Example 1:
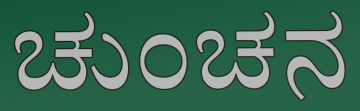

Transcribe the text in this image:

ಚುಂಚನ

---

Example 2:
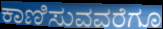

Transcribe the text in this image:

ಕಾಣಿಸುವವರೆಗೂ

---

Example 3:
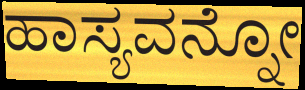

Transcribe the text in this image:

ಹಾಸ್ಯವನ್ನೋ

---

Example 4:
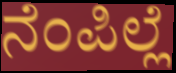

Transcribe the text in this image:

ನೆಂಪಿಲ್ಲೆ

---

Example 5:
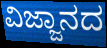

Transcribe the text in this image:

ವಿಜ್ಜಾನದ